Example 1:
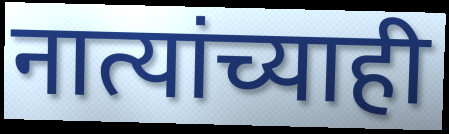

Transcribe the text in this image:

नात्यांच्याही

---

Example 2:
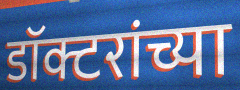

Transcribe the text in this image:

डॉक्टरांच्या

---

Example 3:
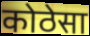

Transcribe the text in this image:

कोठेसा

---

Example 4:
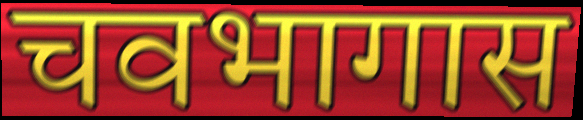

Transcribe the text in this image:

चवभागास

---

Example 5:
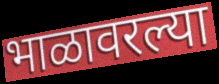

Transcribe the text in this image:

भाळावरल्या